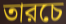
তারচে